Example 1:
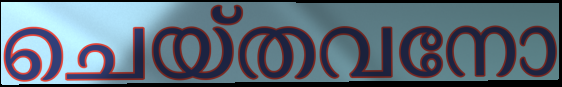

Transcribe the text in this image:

ചെയ്തവനോ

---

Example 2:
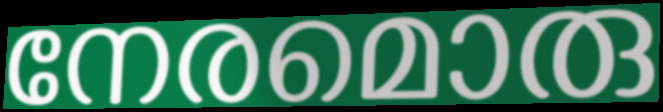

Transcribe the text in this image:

നേരമൊരു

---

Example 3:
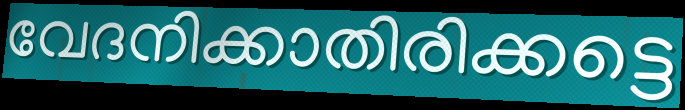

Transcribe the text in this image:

വേദനിക്കാതിരിക്കട്ടെ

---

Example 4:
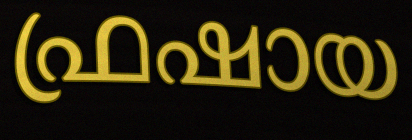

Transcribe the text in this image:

ഫ്രഷായ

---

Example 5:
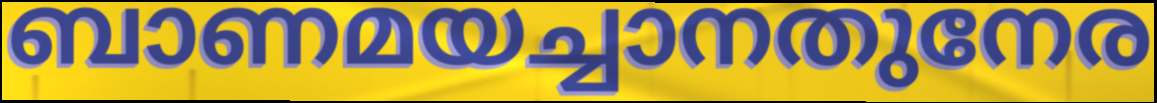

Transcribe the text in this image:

ബാണമയച്ചാനതുനേര